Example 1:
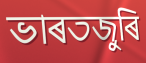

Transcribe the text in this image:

ভাৰতজুৰি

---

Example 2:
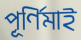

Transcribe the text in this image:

পূৰ্ণিমাই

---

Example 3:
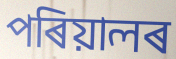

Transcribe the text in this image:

পৰিয়ালৰ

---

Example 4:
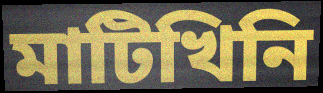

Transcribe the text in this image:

মাটিখিনি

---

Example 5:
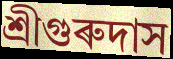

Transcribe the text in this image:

শ্ৰীগুৰুদাস